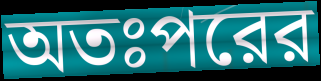
অতঃপরের